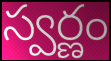
స్వర్ణం